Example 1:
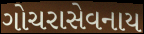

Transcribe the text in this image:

ગોચરાસેવનાય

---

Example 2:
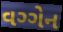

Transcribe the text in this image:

વગ્ગેન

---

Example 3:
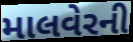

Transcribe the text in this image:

માલવેરની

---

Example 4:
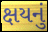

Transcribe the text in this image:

ક્ષયનું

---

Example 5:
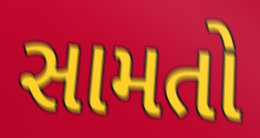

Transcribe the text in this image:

સામતો